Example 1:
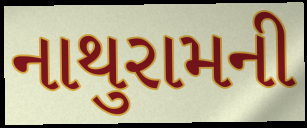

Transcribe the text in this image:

નાથુરામની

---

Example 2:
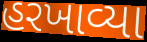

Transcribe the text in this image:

હરખાવ્યા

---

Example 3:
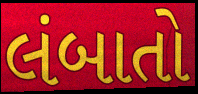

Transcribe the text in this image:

લંબાતો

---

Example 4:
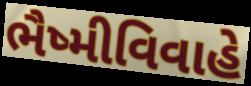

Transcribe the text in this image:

ભૈષ્મીવિવાહે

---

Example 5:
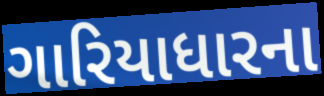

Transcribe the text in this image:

ગારિયાધારના